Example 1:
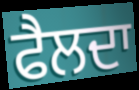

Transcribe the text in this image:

ਫੈਲਦਾ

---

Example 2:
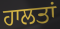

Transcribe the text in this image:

ਹਾਲਤਾਂ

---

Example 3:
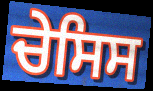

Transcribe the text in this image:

ਚੇਸਿਸ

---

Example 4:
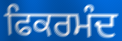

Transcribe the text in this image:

ਫਿਕਰਮੰਦ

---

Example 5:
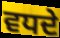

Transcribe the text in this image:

ਵਧਦੇ